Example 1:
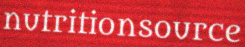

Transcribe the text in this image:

nutritionsource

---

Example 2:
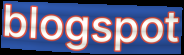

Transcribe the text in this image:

blogspot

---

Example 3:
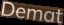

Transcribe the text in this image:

Demat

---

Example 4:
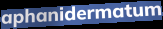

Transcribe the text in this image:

aphanidermatum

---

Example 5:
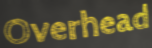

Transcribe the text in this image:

Overhead